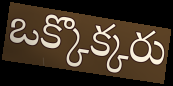
ఒక్కొక్కరు